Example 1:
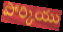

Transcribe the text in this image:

పోర్కియు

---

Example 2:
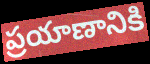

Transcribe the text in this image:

ప్రయాణానికి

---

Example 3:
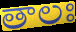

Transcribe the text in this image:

తాలః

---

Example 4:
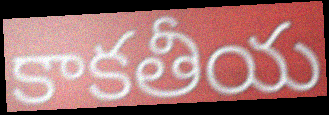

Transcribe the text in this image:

కాకతీయ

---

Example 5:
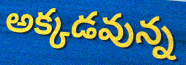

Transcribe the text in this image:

అక్కడవున్న